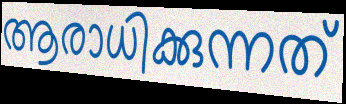
ആരാധിക്കുന്നത്